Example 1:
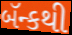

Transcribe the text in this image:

બૅન્કથી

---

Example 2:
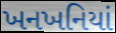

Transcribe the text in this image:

ખનખનિયાં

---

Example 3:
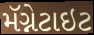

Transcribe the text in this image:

મૅગ્નેટાઇટ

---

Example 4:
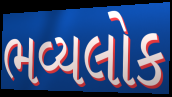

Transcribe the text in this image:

ભવ્યલોક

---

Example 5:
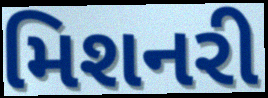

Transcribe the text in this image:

મિશનરી